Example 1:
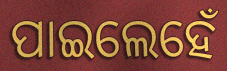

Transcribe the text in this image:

ପାଇଲେହେଁ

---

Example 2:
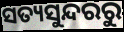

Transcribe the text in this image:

ସତ୍ୟସୁନ୍ଦରରୁ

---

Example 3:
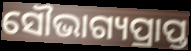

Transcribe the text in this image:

ସୌଭାଗ୍ୟପ୍ରାପ୍ତ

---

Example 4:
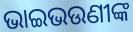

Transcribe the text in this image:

ଭାଇଭଉଣୀଙ୍କ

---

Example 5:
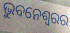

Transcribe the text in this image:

ଭୁବନେଶ୍ୱରର